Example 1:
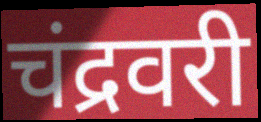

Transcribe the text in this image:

चंद्रवरी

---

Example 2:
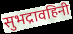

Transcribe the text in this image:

सुभद्रावहिनी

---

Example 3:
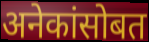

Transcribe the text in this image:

अनेकांसोबत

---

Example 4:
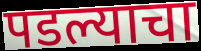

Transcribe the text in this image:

पडल्याचा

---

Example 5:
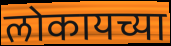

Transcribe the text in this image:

लोकायच्या